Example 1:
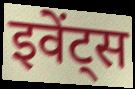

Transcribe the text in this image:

इवेंट्स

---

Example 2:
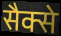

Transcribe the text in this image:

सैक्से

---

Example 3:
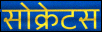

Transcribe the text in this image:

सोक्रेटस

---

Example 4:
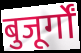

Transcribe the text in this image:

बुजूर्गों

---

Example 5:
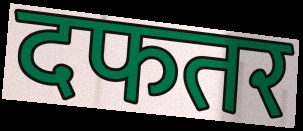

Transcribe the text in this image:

दफतर